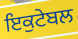
ਇਕੁਟੇਬਲ